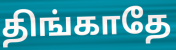
திங்காதே